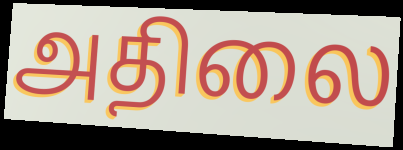
அதிலை